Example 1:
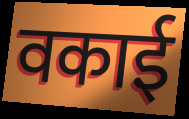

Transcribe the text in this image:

वकाई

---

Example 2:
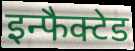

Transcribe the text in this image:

इन्फैक्टेड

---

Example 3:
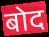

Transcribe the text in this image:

बोद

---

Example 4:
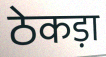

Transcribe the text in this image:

ठेकड़ा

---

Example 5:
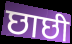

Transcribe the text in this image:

छाछी